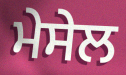
ਮੇਸੇਲ